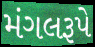
મંગલરૂપે